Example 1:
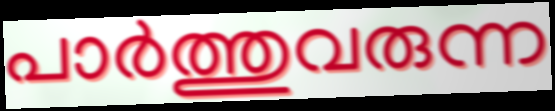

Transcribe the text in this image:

പാർത്തുവരുന്ന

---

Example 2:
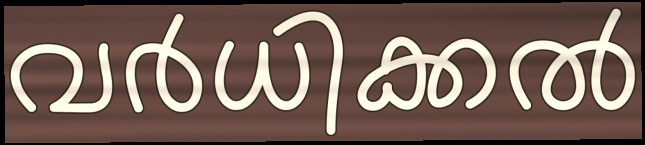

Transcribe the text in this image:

വർധിക്കൽ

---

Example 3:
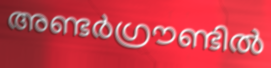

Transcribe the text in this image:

അണ്ടർഗ്രൗണ്ടിൽ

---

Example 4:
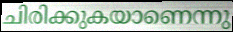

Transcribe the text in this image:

ചിരിക്കുകയാണെന്നു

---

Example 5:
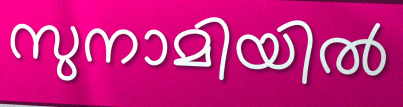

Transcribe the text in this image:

സുനാമിയിൽ